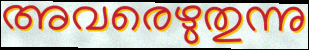
അവരെഴുതുന്നു